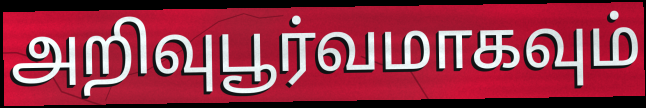
அறிவுபூர்வமாகவும்